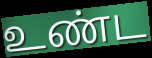
உண்ட